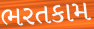
ભરતકામ